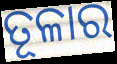
ତୂଳାର